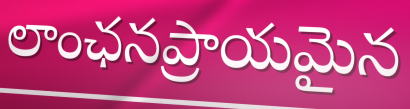
లాంఛనప్రాయమైన